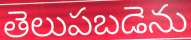
తెలుపబడెను